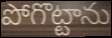
పోగొట్టాను